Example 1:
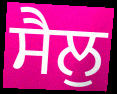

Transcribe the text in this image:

ਸੈਲੁ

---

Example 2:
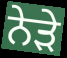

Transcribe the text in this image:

ਨੇਡ਼ੇ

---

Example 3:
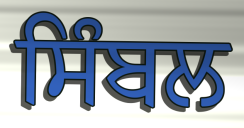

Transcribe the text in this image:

ਸਿੰਬਲ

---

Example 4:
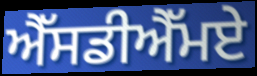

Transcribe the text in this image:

ਐੱਸਡੀਐੱਮਏ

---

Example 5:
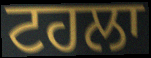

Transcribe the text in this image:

ਟਹਲਾ